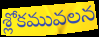
శ్లోకమువలన